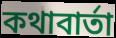
কথাবার্তা